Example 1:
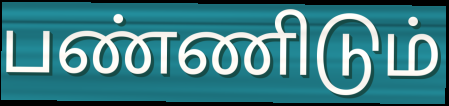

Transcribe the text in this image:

பண்ணிடும்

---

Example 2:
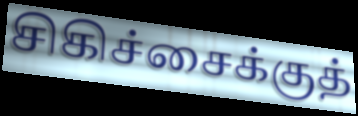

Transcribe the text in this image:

சிகிச்சைக்குத்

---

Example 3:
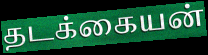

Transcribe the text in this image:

தடக்கையன்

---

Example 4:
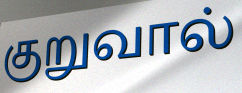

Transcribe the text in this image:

குறுவால்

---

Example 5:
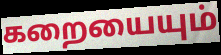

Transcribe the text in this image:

கறையையும்